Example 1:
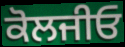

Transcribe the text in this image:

ਕੋਲਜੀਓ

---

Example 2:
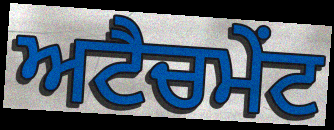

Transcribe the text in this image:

ਅਟੈਚਮੇਂਟ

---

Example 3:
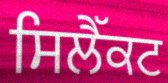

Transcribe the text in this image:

ਸਿਲੈੱਕਟ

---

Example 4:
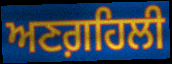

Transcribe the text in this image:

ਅਣਗ਼ਹਿਲੀ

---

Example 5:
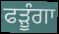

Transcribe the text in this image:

ਫੜੂੰਗਾ